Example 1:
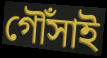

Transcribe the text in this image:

গৌঁসাই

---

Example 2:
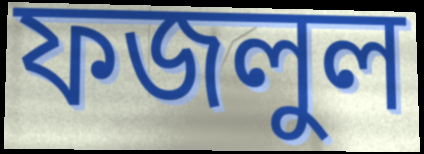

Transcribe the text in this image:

ফজলুল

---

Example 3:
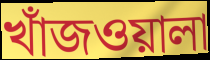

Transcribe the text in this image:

খাঁজওয়ালা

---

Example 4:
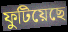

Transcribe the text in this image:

ফুটিয়েছে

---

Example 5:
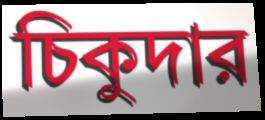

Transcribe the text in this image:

চিকুদার